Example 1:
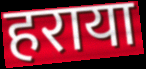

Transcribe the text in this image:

हराया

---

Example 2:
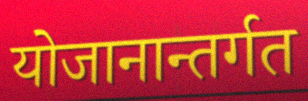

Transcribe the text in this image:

योजानान्तर्गत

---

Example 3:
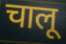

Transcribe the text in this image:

चालू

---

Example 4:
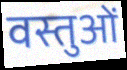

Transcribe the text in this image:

वस्‍तुओं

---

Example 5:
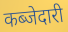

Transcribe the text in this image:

कब्जेदारी